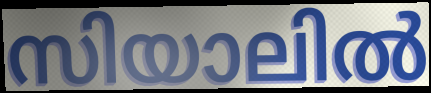
സിയാലിൽ